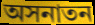
অসনাতন